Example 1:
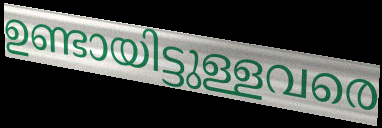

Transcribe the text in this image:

ഉണ്ടായിട്ടുള്ളവരെ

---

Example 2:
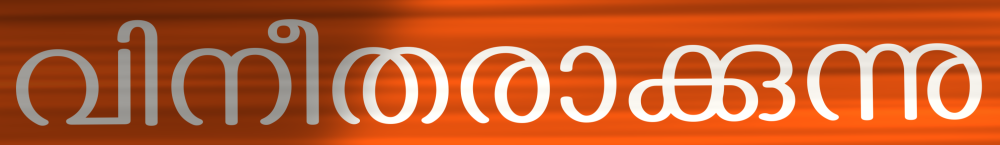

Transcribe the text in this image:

വിനീതരാക്കുന്നു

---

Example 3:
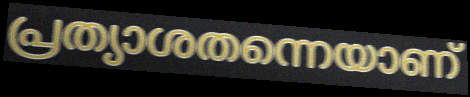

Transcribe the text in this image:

പ്രത്യാശതന്നെയാണ്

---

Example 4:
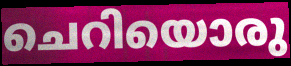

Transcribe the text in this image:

ചെറിയൊരു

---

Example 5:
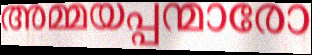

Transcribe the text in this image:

അമ്മയപ്പന്മാരോ